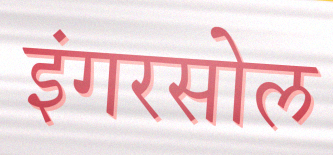
इंगरसोल